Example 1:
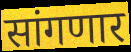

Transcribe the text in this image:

सांगणार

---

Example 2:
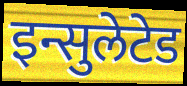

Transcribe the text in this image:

इन्सुलेटेड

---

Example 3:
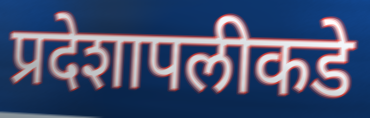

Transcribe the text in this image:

प्रदेशापलीकडे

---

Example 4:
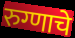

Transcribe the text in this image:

रुग्‍णाचे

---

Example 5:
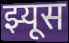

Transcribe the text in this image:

झ्यूस